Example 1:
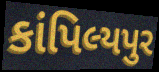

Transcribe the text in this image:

કાંપિલ્યપુર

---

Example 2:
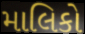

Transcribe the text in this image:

માલિકો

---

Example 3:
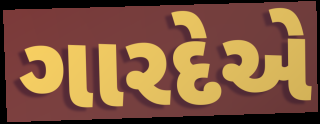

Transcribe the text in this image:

ગારદેએ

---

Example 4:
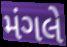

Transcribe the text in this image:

મંગલે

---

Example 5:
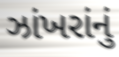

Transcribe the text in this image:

ઝાંખરાંનું